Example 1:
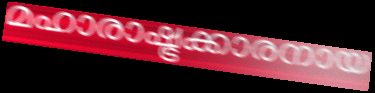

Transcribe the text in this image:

മഹാരാഷ്ട്രക്കാരനായ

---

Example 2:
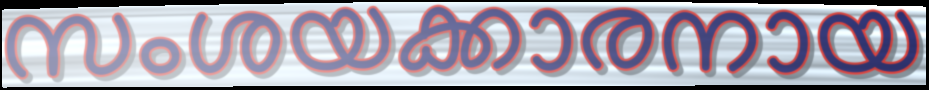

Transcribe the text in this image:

സംശയക്കാരനായ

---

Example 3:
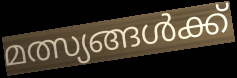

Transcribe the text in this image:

മത്സ്യങ്ങൾക്ക്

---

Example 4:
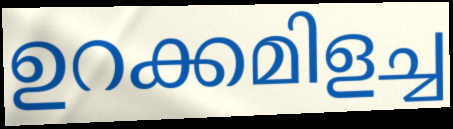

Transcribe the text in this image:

ഉറക്കമിളച്ച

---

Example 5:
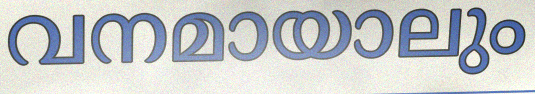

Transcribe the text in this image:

വനമായാലും